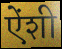
ऐंशी